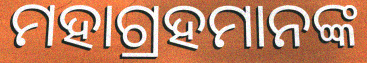
ମହାଗ୍ରହମାନଙ୍କ